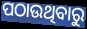
ପଠାଉଥିବାରୁ